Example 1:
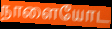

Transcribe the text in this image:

நாளையோட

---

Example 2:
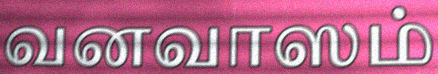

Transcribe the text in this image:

வனவாஸம்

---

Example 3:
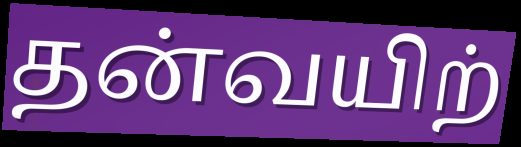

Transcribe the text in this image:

தன்வயிற்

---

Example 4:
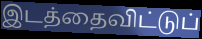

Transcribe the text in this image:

இடத்தைவிட்டுப்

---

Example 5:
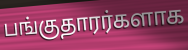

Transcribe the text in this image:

பங்குதாரர்களாக